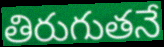
తిరుగుతనే